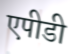
एपीडी